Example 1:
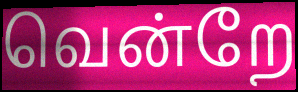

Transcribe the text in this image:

வென்றே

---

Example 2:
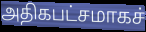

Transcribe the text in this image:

அதிகபட்சமாகச்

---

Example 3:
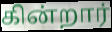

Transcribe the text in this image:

கின்றார்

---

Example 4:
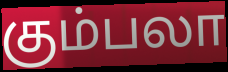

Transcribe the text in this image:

கும்பலா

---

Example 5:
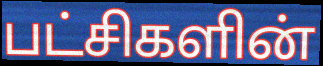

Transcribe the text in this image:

பட்சிகளின்